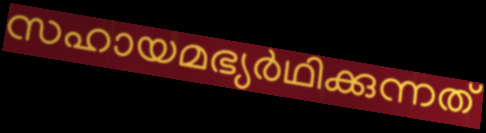
സഹായമഭ്യർഥിക്കുന്നത്